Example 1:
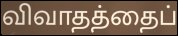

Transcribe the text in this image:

விவாதத்தைப்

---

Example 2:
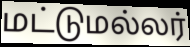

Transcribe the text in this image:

மட்டுமல்லர்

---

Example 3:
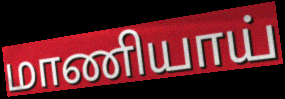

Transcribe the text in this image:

மாணியாய்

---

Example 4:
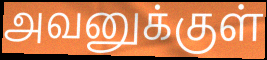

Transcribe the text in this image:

அவனுக்குள்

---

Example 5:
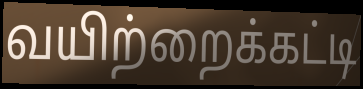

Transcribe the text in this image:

வயிற்றைக்கட்டி